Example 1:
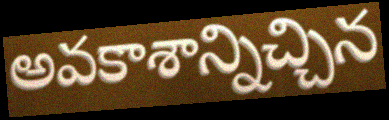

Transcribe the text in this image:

అవకాశాన్నిచ్చిన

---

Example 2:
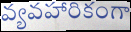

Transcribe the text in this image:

వ్యవహారికంగా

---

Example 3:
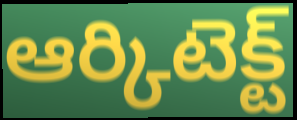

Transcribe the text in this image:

ఆర్కిటెక్ట్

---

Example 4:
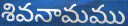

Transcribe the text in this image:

శివనామము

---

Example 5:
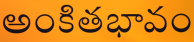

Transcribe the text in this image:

అంకితభావం